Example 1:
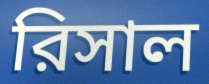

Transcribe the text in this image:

রিসাল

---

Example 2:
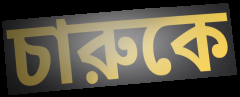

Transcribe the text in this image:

চারুকে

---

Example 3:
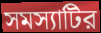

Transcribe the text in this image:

সমস্যাটির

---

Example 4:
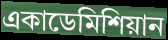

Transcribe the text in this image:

একাডেমিশিয়ান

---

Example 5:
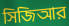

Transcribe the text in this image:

সিজিআর